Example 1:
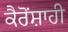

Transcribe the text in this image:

ਕੈਰੋਂਸ਼ਾਹੀ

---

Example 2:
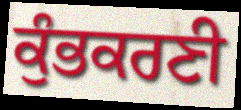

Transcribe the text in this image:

ਕੁੰਭਕਰਣੀ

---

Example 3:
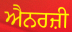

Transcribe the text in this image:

ਐਨਰਜ਼ੀ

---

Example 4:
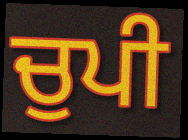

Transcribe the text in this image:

ਚੁਪੀ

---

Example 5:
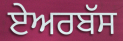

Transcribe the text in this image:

ਏਅਰਬੱਸ